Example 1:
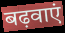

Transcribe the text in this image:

बढ़वाएं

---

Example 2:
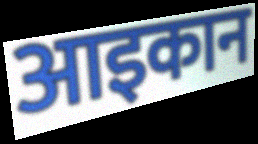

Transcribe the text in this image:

आइकान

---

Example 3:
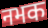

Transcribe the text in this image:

नभक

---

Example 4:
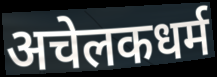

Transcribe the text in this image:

अचेलकधर्म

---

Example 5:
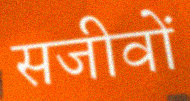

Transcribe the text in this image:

सजीवों